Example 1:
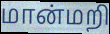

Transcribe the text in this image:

மான்மறி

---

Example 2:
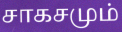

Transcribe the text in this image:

சாகசமும்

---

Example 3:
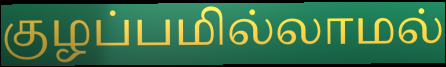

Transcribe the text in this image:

குழப்பமில்லாமல்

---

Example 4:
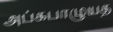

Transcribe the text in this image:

அப்கபாழுயத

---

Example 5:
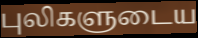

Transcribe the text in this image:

புலிகளுடைய